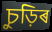
চুড়িৰ